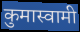
कुमास्वामी